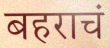
बहराचं